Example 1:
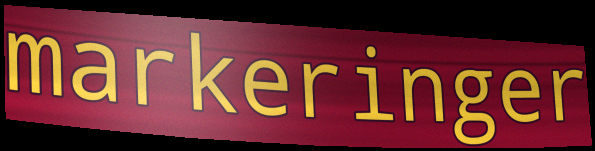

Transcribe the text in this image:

markeringer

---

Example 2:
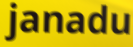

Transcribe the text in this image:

janadu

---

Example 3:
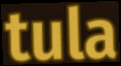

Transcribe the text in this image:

tula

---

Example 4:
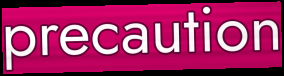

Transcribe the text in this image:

precaution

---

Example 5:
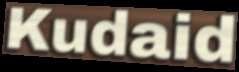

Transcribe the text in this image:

Kudaid